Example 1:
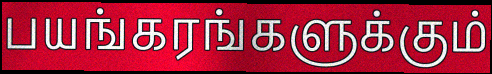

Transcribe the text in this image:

பயங்கரங்களுக்கும்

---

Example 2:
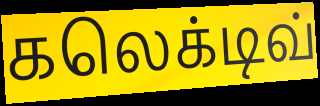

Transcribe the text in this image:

கலெக்டிவ்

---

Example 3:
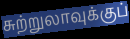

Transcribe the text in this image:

சுற்றுலாவுக்குப்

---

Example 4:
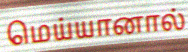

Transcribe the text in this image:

மெய்யானால்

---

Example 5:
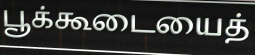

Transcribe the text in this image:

பூக்கூடையைத்